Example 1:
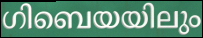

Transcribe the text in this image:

ഗിബെയയിലും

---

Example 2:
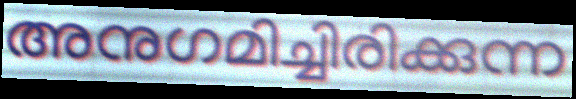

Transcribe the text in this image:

അനുഗമിച്ചിരിക്കുന്ന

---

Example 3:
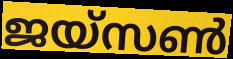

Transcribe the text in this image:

ജയ്സൺ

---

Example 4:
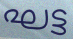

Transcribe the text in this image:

ഘട്ട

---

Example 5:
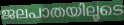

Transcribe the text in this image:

ജലപാതയിലൂടെ